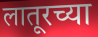
लातूरच्या